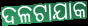
ଦଳଟାଯାକ